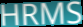
HRMS